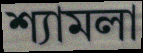
শ্যামলা